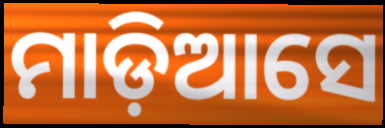
ମାଡ଼ିଆସେ